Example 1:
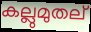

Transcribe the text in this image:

കല്ലുമുതല്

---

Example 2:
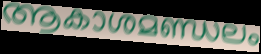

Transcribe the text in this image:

ആകാശമണ്ഡലം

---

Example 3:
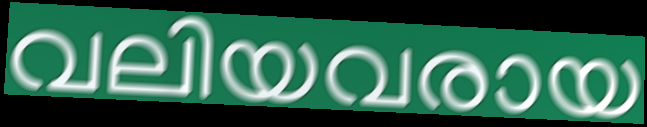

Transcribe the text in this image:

വലിയവരായ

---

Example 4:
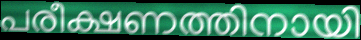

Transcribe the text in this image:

പരീക്ഷണത്തിനായി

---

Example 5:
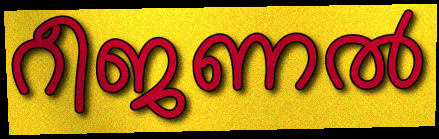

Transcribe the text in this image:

റീജണൽ